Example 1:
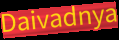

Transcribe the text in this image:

Daivadnya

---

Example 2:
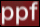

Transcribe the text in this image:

ppf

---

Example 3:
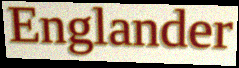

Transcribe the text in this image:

Englander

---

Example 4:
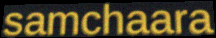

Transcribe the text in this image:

samchaara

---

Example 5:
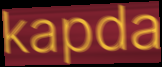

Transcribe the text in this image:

kapda